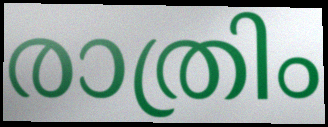
രാത്രിം